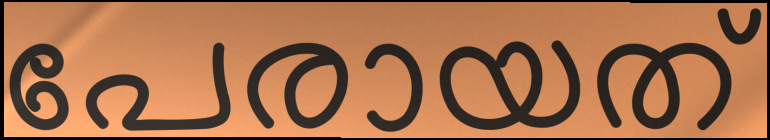
പേരായത്